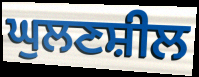
ਘੁਲਣਸ਼ੀਲ